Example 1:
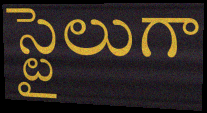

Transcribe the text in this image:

స్టైలుగా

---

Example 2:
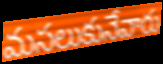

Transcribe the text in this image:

మసలుకునేవారు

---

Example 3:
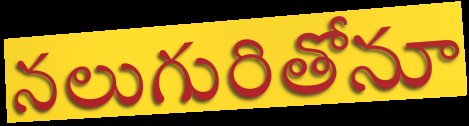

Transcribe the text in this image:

నలుగురితోనూ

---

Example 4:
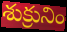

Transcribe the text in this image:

శుక్రునిం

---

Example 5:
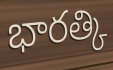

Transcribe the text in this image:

భారత్కి